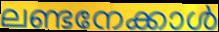
ലണ്ടനേക്കാൾ